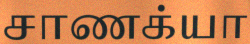
சாணக்யா